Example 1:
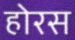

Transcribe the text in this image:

होरस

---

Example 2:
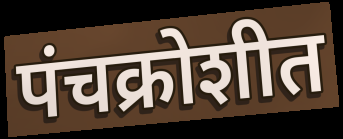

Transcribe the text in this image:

पंचक्रोशीत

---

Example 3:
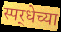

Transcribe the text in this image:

स्पर्धेच्या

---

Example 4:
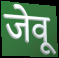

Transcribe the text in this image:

जेवू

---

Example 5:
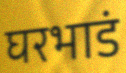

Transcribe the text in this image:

घरभाडं